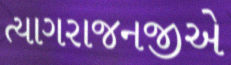
ત્યાગરાજનજીએ